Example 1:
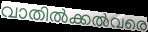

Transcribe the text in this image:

വാതിൽക്കൽവരെ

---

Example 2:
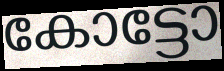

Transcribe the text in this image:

കോട്ടോ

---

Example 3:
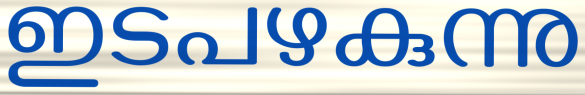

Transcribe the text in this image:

ഇടപഴകുന്നു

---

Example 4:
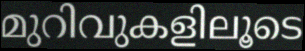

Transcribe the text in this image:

മുറിവുകളിലൂടെ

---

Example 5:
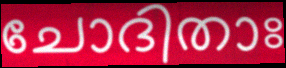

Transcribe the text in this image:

ചോദിതാഃ